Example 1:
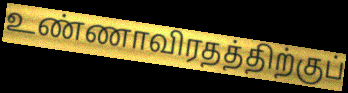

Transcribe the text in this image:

உண்ணாவிரதத்திற்குப்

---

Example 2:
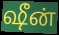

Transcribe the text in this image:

ஷீன்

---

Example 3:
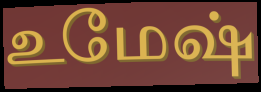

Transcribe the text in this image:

உமேஷ்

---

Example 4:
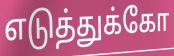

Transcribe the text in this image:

எடுத்துக்கோ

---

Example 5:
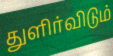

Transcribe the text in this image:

துளிர்விடும்